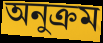
অনুক্ৰম